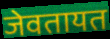
जेवतायत